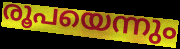
രൂപയെന്നും